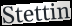
Stettin